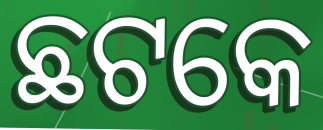
ଛଟକେ